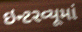
ઇન્ટરવ્યૂમાં